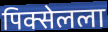
पिक्सेलला